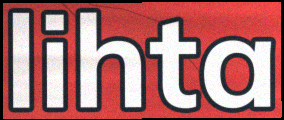
lihta